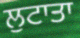
ਲੁਟਾਤਾ